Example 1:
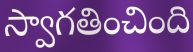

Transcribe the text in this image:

స్వాగతించింది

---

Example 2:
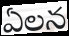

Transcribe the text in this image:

ఏలన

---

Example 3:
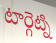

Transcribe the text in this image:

టార్గెట్ని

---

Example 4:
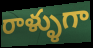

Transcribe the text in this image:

రాళ్ళుగా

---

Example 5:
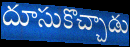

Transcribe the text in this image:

దూసుకొచ్చాడు